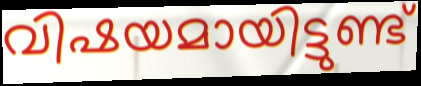
വിഷയമായിട്ടുണ്ട്